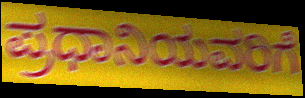
ಪ್ರಧಾನಿಯವರಿಗೆ